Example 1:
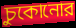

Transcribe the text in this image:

চুকোনোর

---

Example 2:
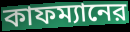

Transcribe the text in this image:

কাফম্যানের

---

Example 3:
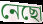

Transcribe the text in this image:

নেছো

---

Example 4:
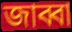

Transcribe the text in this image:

জাব্বা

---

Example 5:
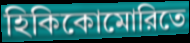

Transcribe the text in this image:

হিকিকোমোরিতে